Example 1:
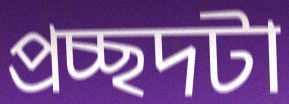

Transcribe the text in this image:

প্রচ্ছদটা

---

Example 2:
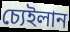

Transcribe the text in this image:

চ্যেইলান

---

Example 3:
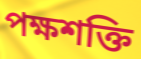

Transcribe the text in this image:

পক্ষশক্তি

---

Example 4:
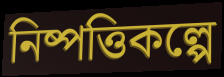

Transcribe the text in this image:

নিষ্পত্তিকল্পে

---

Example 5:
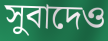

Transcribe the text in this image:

সুবাদেও